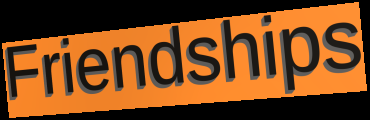
Friendships